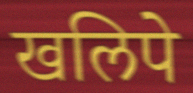
खलिपे